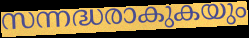
സന്നദ്ധരാകുകയും